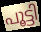
പൂട്ടി